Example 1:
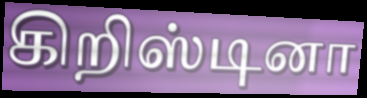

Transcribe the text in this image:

கிறிஸ்டினா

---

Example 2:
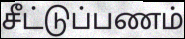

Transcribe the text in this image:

சீட்டுப்பணம்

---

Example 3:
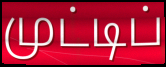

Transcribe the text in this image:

முட்டிப்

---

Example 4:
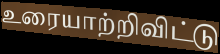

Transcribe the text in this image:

உரையாற்றிவிட்டு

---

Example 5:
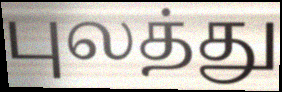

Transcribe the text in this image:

புலத்து